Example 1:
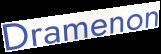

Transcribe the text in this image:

Dramenon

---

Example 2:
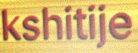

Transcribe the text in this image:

kshitije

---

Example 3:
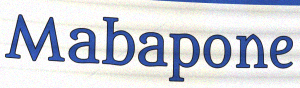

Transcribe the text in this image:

Mabapone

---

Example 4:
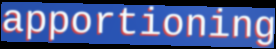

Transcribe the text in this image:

apportioning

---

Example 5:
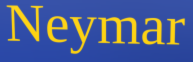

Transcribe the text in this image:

Neymar